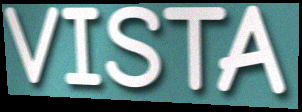
VISTA